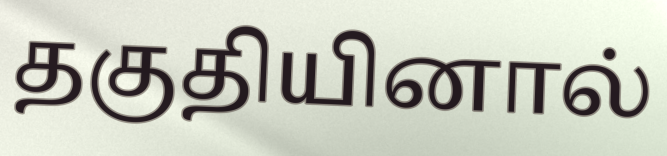
தகுதியினால்